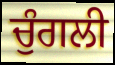
ਚੁੰਗਲੀ